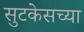
सुटकेसच्या